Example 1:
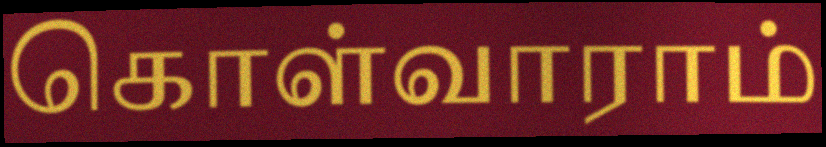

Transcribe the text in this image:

கொள்வாராம்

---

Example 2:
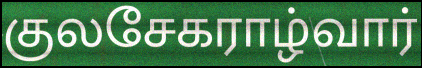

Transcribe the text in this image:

குலசேகராழ்வார்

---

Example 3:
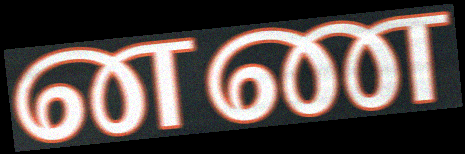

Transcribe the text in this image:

னண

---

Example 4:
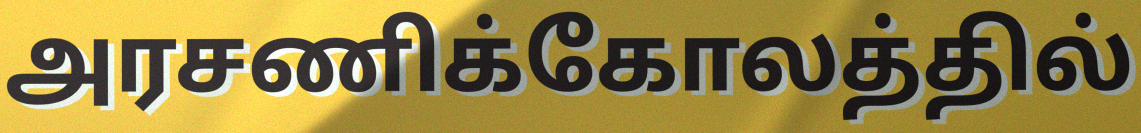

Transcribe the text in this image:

அரசணிக்கோலத்தில்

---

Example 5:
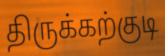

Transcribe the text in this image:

திருக்கற்குடி